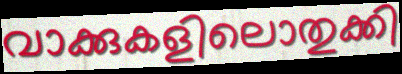
വാക്കുകളിലൊതുക്കി